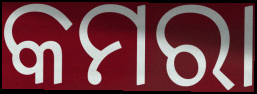
କମରା